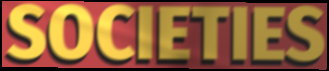
SOCIETIES